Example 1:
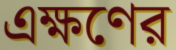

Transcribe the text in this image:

এক্ষণের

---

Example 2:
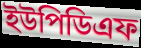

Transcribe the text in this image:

ইউপিডিএফ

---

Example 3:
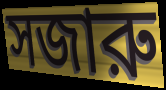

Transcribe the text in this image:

সজারু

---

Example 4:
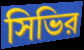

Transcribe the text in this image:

সিভির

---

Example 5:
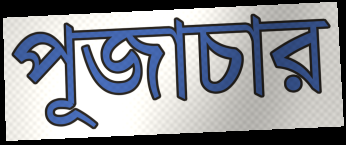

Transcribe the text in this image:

পূজাচার